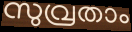
സുവ്രതാം